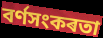
বৰ্ণসংকৰতা